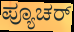
ಪ್ಯೂಚರ್